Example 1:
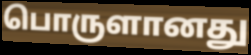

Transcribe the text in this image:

பொருளானது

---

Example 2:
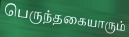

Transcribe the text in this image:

பெருந்தகையாரும்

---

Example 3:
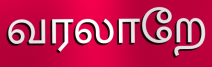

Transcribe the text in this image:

வரலாறே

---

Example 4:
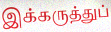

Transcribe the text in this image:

இக்கருத்துப்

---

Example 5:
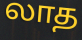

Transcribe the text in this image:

லாத